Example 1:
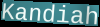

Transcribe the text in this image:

Kandiah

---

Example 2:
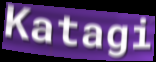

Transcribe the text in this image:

Katagi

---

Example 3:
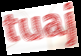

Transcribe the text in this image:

tuaj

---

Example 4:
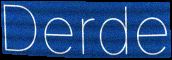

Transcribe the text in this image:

Derde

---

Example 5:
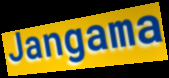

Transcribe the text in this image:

Jangama